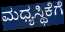
ಮಧ್ಯಸ್ಥಿಕೆಗೆ